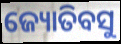
ଜ୍ୟୋତିବସୁ